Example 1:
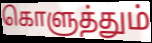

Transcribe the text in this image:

கொளுத்தும்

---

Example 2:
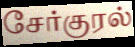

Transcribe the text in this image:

சேர்குரல்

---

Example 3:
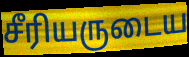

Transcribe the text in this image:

சீரியருடைய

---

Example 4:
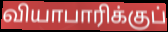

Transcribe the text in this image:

வியாபாரிக்குப்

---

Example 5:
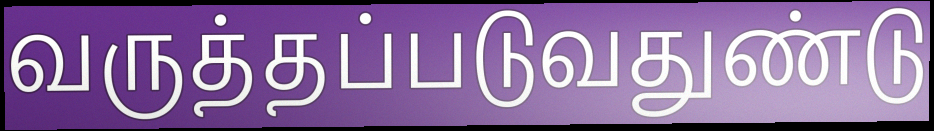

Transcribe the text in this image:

வருத்தப்படுவதுண்டு